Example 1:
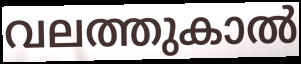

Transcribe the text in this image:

വലത്തുകാൽ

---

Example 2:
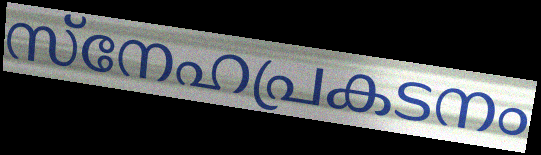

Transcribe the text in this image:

സ്നേഹപ്രകടനം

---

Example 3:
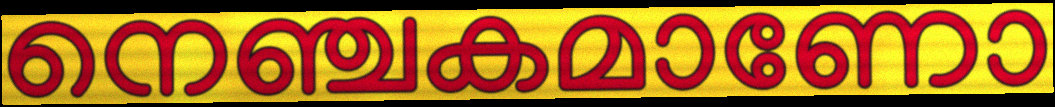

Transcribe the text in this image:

നെഞ്ചകമാണോ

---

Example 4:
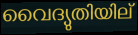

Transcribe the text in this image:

വൈദ്യുതിയില്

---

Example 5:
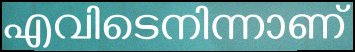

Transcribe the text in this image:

എവിടെനിന്നാണ്